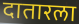
दातारला